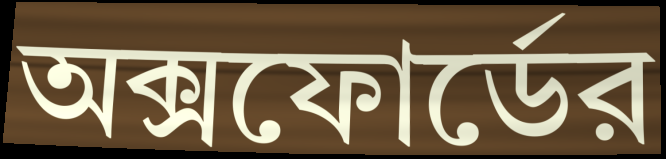
অক্সফোর্ডের